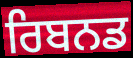
ਰਿਬਨਡ